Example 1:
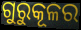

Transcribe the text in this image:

ଗୁରୁକୂଳର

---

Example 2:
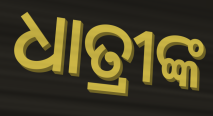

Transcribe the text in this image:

ଧାତ୍ରୀଙ୍କ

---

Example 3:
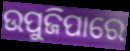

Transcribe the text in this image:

ଉପୁଜିପାରେ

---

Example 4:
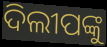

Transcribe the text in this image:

ଦିଲୀପଙ୍କୁ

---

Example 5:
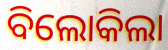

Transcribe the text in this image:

ବିଲୋକିଲା